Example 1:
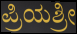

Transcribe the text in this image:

ಪ್ರಿಯಶ್ರೀ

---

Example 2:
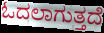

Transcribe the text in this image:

ಓದಲಾಗುತ್ತದೆ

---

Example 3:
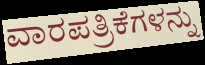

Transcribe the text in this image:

ವಾರಪತ್ರಿಕೆಗಳನ್ನು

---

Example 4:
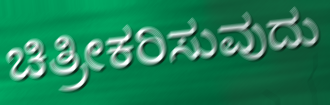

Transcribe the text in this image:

ಚಿತ್ರೀಕರಿಸುವುದು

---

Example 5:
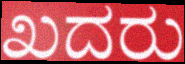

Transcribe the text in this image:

ಖದರು